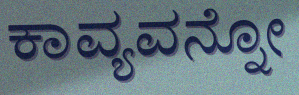
ಕಾವ್ಯವನ್ನೋ